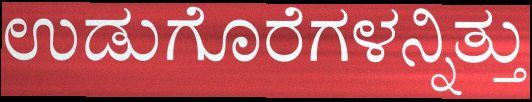
ಉಡುಗೊರೆಗಳನ್ನಿತ್ತು